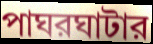
পাঘরঘাটার